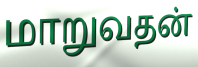
மாறுவதன்